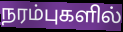
நரம்புகளில்